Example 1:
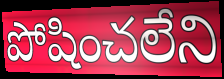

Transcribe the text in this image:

పోషించలేని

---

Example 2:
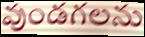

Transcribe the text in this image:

వుండగలను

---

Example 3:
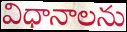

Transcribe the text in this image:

విధానాలను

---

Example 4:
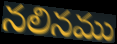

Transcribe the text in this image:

నలినము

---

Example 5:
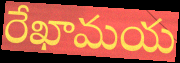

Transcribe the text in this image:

రేఖామయ